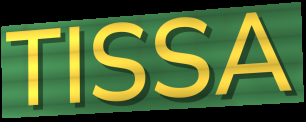
TISSA